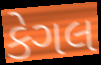
કેગલ